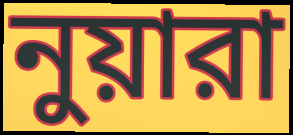
নুয়ারা